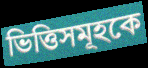
ভিত্তিসমূহকে